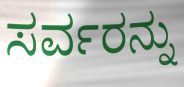
ಸರ್ವರನ್ನು